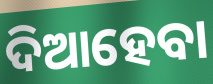
ଦିଆହେବା